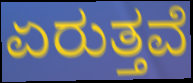
ಏರುತ್ತವೆ